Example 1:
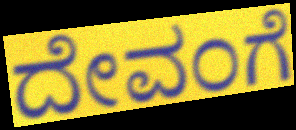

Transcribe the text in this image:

ದೇವಂಗೆ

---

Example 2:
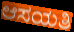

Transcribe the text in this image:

ಆಸಯತಿ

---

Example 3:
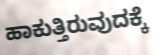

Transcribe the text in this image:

ಹಾಕುತ್ತಿರುವುದಕ್ಕೆ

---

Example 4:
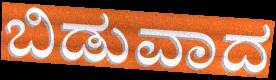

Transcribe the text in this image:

ಬಿಡುವಾದ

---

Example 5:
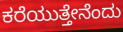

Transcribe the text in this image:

ಕರೆಯುತ್ತೇನೆಂದು